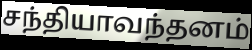
சந்தியாவந்தனம்